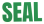
SEAL